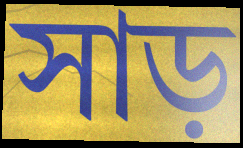
সাড়